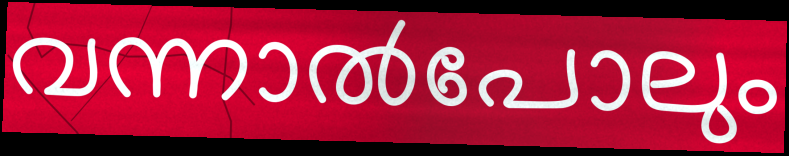
വന്നാൽപോലും